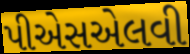
પીએસએલવી